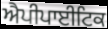
ਐਪੀਪਾਈਟਿਕ